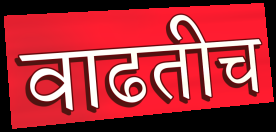
वाढतीच